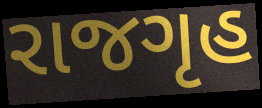
રાજગૃહ